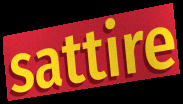
sattire